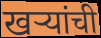
खऱ्यांची